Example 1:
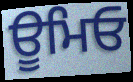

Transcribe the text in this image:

ਊਮਿਓ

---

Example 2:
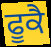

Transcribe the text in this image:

ਫੂਕੈ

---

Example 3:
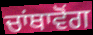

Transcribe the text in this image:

ਚਾਂਥਾਵੋਂਗ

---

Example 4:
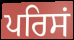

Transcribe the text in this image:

ਪਰਿਸਂ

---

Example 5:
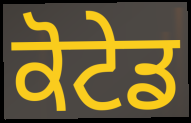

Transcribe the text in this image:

ਕੋਟੇਡ